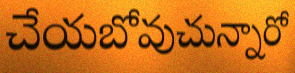
చేయబోవుచున్నారో